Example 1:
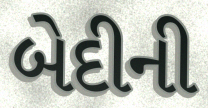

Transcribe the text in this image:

બેદીની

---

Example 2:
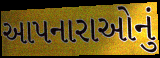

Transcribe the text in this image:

આપનારાઓનું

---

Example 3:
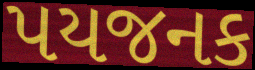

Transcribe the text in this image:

પયજનક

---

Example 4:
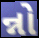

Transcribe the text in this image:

ન્નો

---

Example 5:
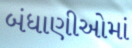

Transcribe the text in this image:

બંધાણીઓમાં